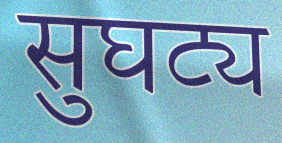
सुघट्य